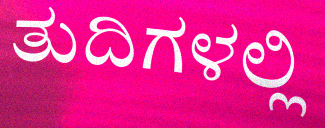
ತುದಿಗಳಲ್ಲಿ